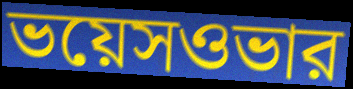
ভয়েসওভার